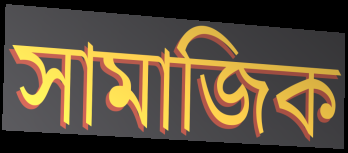
সামাজিক